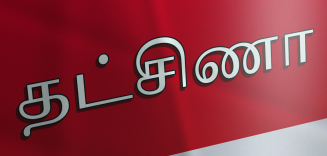
தட்சிணா